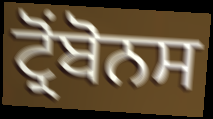
ਟ੍ਰੋਂਬੋਨਸ